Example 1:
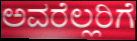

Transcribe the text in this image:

ಅವರೆಲ್ಲರಿಗೆ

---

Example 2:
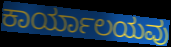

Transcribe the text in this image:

ಕಾರ್ಯಾಲಯವು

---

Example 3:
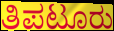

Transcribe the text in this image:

ತಿಪಟೂರು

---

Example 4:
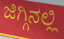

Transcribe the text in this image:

ಜಿಗ್ಗಿನಲ್ಲಿ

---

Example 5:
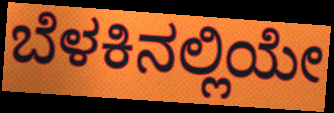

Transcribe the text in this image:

ಬೆಳಕಿನಲ್ಲಿಯೇ